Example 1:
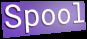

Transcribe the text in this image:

Spool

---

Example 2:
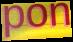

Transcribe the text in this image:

pon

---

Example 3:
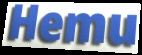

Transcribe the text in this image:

Hemu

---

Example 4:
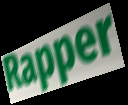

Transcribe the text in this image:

Rapper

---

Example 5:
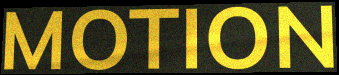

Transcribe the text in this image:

MOTION